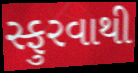
સ્ફુરવાથી